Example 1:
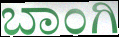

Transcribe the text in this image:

ಬಾಂಗಿ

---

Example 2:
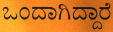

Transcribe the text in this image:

ಒಂದಾಗಿದ್ದಾರೆ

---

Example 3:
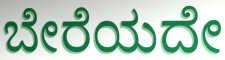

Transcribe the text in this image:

ಬೇರೆಯದೇ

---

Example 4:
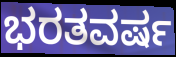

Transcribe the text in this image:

ಭರತವರ್ಷ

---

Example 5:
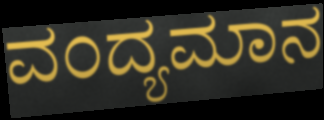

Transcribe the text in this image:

ವಂದ್ಯಮಾನ